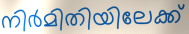
നിർമിതിയിലേക്ക്